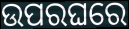
ଉପରଘରେ